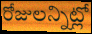
రోజులన్నిట్లో